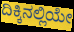
ದಿಕ್ಕಿನಲ್ಲಿಯೇ